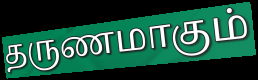
தருணமாகும்